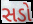
સડો